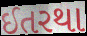
ઈતરથા